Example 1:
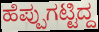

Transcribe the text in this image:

ಹೆಪ್ಪುಗಟ್ಟಿದ್ದ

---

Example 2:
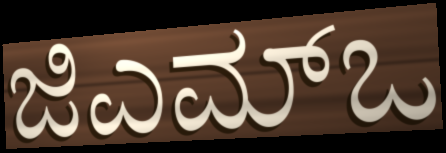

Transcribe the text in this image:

ಜಿಎಮ್ಒ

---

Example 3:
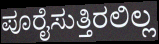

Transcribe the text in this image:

ಪೂರೈಸುತ್ತಿರಲಿಲ್ಲ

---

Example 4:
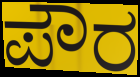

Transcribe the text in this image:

ಪೌರ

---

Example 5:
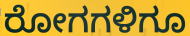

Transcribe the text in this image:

ರೋಗಗಳಿಗೂ